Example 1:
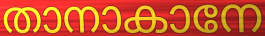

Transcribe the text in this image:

താനാകാനേ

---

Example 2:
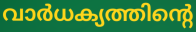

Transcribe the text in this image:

വാർധക്യത്തിന്റെ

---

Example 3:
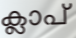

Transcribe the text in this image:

ക്ലാപ്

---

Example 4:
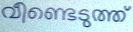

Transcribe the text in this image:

വീണ്ടെടുത്ത്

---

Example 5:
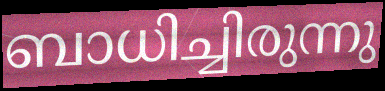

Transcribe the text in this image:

ബാധിച്ചിരുന്നു